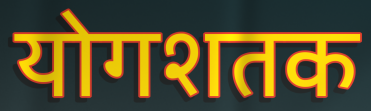
योगशतक